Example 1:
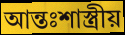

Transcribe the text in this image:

আন্তঃশাস্ত্রীয়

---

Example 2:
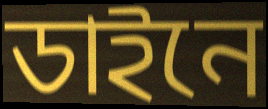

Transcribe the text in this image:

ডাইনে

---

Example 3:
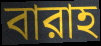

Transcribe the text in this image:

বারাহ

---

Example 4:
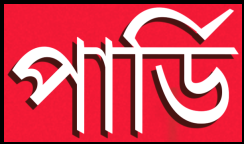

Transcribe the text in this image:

পার্ডি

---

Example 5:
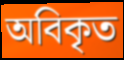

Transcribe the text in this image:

অবিকৃত